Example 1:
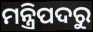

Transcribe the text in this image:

ମନ୍ତ୍ରିପଦରୁ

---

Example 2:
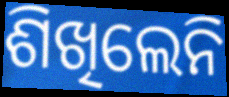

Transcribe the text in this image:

ଶିଖିଲେନି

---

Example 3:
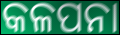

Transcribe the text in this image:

କଳପନା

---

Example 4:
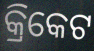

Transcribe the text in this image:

କ୍ରିକେଟ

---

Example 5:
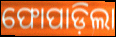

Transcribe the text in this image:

ଫୋପାଡ଼ିଲା